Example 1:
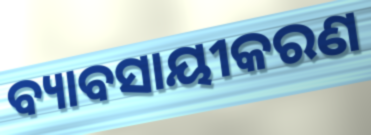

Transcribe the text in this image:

ବ୍ୟାବସାୟୀକରଣ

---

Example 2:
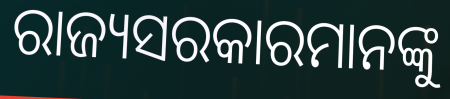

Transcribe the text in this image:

ରାଜ୍ୟସରକାରମାନଙ୍କୁ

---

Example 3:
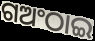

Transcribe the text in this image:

ଗଅଂଠାଇ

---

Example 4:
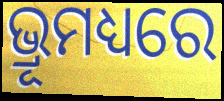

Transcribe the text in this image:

ଭ୍ରୂମଧ୍ୟରେ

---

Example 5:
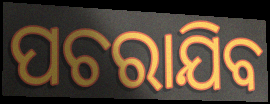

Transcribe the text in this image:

ପଚରାଯିବ